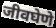
जीवघेणे